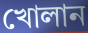
খোলান